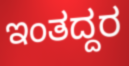
ಇಂತದ್ದರ